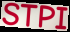
STPI